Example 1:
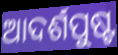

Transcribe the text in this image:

ଆଦର୍ଶପୁଷ୍ଟ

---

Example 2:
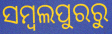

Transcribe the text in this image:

ସମ୍ବଲପୁରରୁ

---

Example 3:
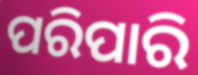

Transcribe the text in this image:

ପରିପାରି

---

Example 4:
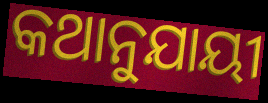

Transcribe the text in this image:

କଥାନୁଯାୟୀ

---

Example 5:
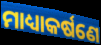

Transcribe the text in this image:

ମାଧ୍ୟାକର୍ଷଣେ